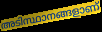
അടിസ്ഥാനങ്ങളാണ്